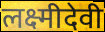
लक्ष्मीदेवी